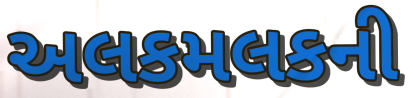
અલકમલકની